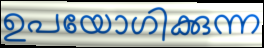
ഉപയോഗിക്കുന്ന